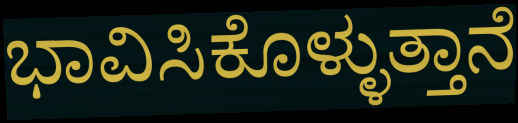
ಭಾವಿಸಿಕೊಳ್ಳುತ್ತಾನೆ